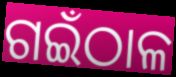
ଗଇଁଠାଳ